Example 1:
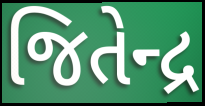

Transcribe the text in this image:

જિતેન્દ્ર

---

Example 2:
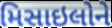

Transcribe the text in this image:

મિસાઇલોને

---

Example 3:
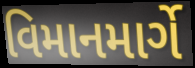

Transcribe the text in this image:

વિમાનમાર્ગે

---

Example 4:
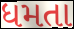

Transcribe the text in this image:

ધમતા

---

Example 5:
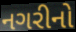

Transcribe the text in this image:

નગરીનો